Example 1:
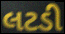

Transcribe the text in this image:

લટડી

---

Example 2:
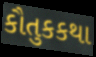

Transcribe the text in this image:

કૌતુકકથા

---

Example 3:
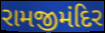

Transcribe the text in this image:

રામજીમંદિર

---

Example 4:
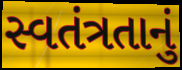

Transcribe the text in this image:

સ્વતંત્રતાનું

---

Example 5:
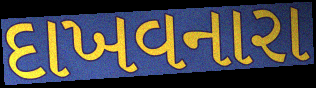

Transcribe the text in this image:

દાખવનારા